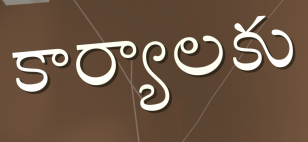
కార్యాలకు